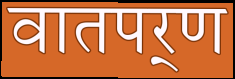
वातपर्ण